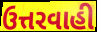
ઉત્તરવાહી